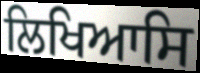
ਲਿਖਿਆਸਿ